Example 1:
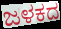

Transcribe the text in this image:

ಜಳಕದ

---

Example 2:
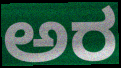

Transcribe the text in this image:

ಅರ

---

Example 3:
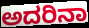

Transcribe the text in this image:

ಅದರಿನಾ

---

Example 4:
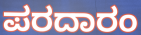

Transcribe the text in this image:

ಪರದಾರಂ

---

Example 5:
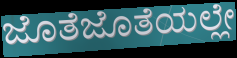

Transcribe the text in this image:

ಜೊತೆಜೊತೆಯಲ್ಲೇ